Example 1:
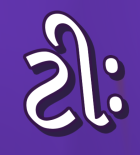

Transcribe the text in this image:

ટીઃ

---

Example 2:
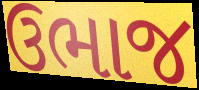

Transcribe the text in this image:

ઉભાજ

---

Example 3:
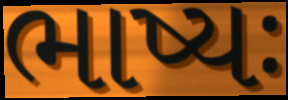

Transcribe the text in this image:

ભાષ્યઃ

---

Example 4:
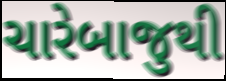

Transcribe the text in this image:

ચારેબાજુથી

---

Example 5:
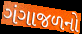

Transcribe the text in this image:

ગંગાજળનો